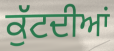
ਕੁੱਟਦੀਆਂ